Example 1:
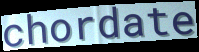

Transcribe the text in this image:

chordate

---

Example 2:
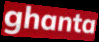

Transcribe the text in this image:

ghanta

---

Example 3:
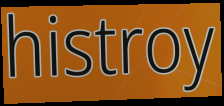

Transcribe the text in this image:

histroy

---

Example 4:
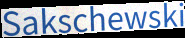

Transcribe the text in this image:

Sakschewski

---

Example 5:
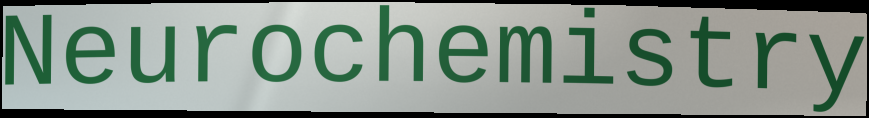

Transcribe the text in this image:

Neurochemistry